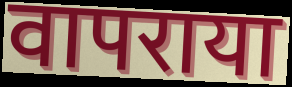
वापराया